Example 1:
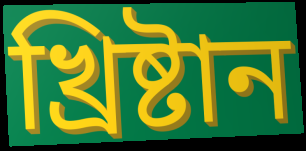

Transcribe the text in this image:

খ্রিষ্টান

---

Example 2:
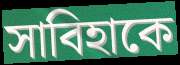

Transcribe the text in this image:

সাবিহাকে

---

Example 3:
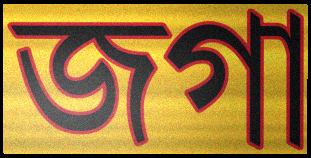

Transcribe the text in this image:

জগা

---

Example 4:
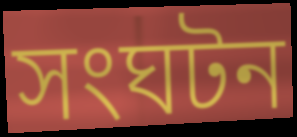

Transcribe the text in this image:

সংঘটন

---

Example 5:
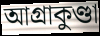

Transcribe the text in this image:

আগ্রাকুণ্ডা